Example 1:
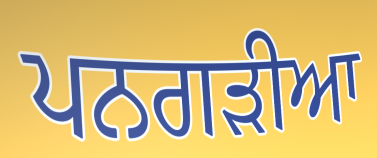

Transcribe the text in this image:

ਪਨਗੜੀਆ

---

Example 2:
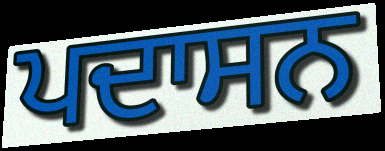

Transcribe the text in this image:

ਪਦਾਸਨ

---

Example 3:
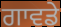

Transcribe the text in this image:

ਗਾਵਡੇ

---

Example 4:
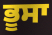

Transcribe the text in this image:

ਭੂਸਾ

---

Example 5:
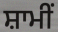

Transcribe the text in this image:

ਸ਼ਾਮੀਂ